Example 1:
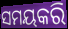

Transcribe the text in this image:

ସମୟକରି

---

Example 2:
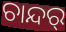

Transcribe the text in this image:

ଚାନ୍ଦର୍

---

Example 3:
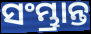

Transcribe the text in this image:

ସଂମ୍ଭ୍ରାନ୍ତ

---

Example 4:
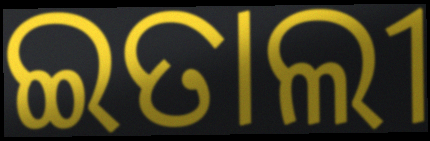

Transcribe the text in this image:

ଇତାଲୀ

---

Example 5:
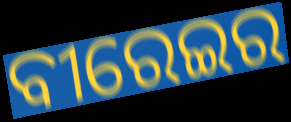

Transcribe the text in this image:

ବୀରେଇର